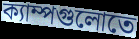
ক্যাম্পগুলোতে